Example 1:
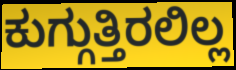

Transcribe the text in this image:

ಕುಗ್ಗುತ್ತಿರಲಿಲ್ಲ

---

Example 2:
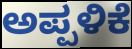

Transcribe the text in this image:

ಅಪ್ಪಳಿಕೆ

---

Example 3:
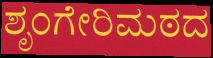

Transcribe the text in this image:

ಶೃಂಗೇರಿಮಠದ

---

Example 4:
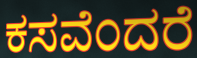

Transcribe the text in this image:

ಕಸವೆಂದರೆ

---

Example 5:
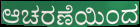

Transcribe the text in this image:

ಆಚರಣೆಯಿಂದ